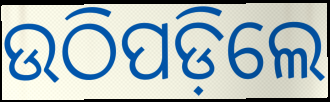
ଉଠିପଡ଼ିଲେ